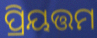
ପ୍ରିୟତ୍ତମ